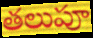
తలుపూ